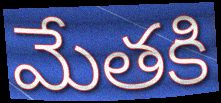
మేతకి